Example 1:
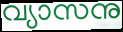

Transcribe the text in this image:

വ്യാസനു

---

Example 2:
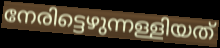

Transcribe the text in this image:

നേരിട്ടെഴുന്നള്ളിയത്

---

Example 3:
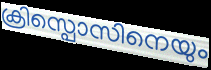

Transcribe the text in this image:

ക്രിസ്പൊസിനെയും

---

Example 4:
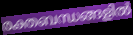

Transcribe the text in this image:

രക്തബന്ധങ്ങളിൽ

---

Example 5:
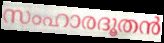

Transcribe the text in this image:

സംഹാരദൂതൻ